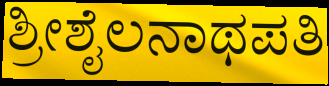
ಶ್ರೀಶೈಲನಾಥಪತಿ